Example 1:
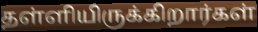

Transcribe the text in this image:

தள்ளியிருக்கிறார்கள்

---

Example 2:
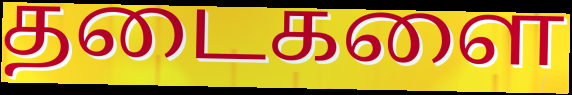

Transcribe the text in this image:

தடைகளை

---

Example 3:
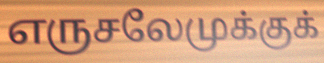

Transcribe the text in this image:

எருசலேமுக்குக்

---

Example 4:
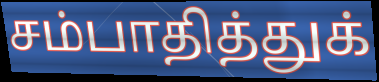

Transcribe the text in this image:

சம்பாதித்துக்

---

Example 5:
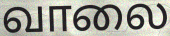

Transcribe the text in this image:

வாலை